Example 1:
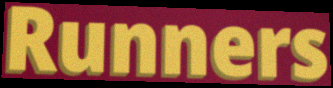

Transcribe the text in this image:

Runners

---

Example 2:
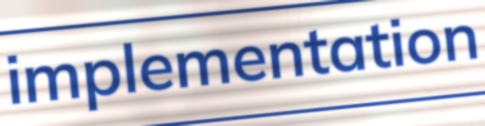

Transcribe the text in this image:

implementation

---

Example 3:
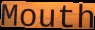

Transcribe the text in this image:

Mouth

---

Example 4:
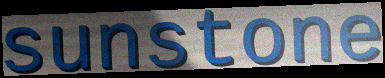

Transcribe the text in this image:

sunstone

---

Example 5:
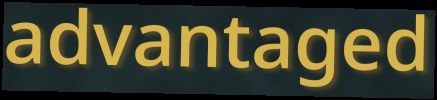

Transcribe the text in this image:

advantaged